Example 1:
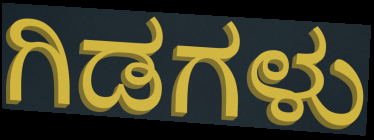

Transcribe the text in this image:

ಗಿಡಗಳು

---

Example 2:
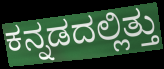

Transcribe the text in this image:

ಕನ್ನಡದಲ್ಲಿತ್ತು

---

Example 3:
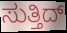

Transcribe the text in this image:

ಸುತ್ತಿದ್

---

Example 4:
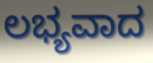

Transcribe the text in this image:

ಲಭ್ಯವಾದ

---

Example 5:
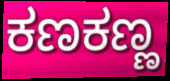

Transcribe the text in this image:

ಕಣಕಣ್ಣ